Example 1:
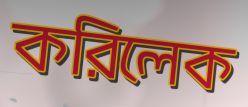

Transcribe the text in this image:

করিলেক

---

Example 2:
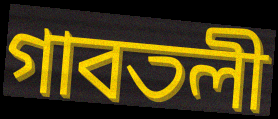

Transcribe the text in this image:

গাবতলী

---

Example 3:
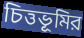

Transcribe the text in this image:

চিত্তভূমির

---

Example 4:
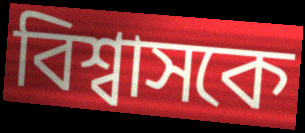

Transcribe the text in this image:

বিশ্বাসকে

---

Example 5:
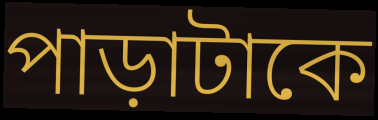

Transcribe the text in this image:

পাড়াটাকে